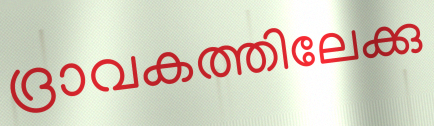
ദ്രാവകത്തിലേക്കു